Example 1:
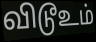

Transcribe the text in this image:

விடூஉம்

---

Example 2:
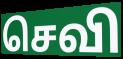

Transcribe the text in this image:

செவி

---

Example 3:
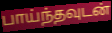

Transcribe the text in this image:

பாய்ந்தவுடன்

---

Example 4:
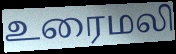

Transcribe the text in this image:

உரைமலி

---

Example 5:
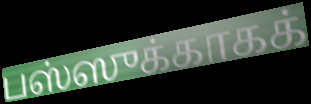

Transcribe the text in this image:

பஸ்ஸுக்காகக்